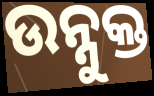
ଉନ୍ନୁକ୍ତ